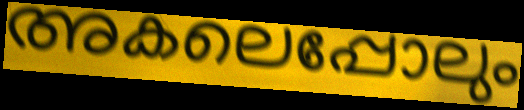
അകലെപ്പോലും